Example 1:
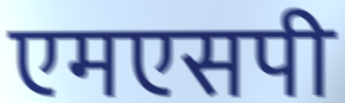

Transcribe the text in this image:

एमएसपी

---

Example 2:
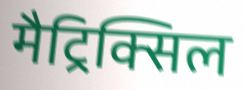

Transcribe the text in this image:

मैट्रिक्सिल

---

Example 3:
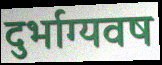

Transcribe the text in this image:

दुर्भाग्यवष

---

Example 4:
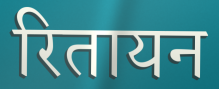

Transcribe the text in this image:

रितायन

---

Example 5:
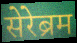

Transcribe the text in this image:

सेरेब्रम